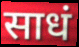
साधं